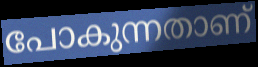
പോകുന്നതാണ്